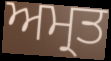
ਅਮ੍ਰਤ